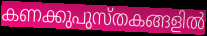
കണക്കുപുസ്തകങ്ങളിൽ